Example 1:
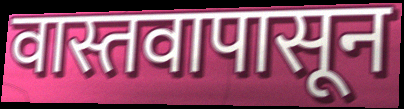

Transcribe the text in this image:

वास्तवापासून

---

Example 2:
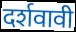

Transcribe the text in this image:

दर्शवावी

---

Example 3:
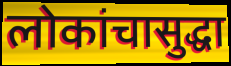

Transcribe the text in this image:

लोकांचासुद्धा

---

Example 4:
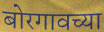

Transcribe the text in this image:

बोरगावच्या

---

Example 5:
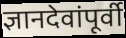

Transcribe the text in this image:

ज्ञानदेवांपूर्वी